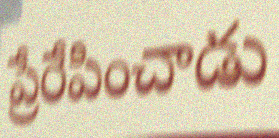
ప్రేరేపించాడు